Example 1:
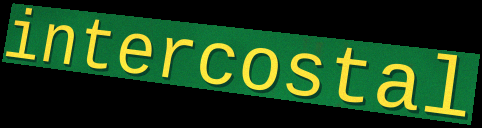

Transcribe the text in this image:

intercostal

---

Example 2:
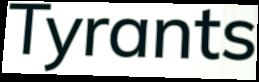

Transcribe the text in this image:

Tyrants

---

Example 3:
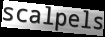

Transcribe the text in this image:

scalpels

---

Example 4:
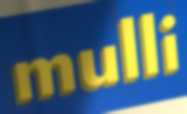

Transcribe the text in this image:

mulli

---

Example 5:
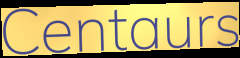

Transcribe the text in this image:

Centaurs